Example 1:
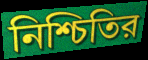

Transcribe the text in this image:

নিশ্চিতির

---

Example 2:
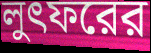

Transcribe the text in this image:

লুৎফরের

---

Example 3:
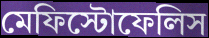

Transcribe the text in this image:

মেফিস্টোফেলিস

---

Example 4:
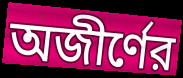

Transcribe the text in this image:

অজীর্ণের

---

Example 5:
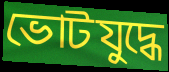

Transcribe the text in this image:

ভোটযুদ্ধে